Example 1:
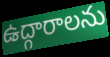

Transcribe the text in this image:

ఉద్గారాలను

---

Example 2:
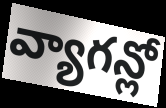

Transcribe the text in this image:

వ్యాగన్లో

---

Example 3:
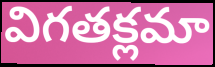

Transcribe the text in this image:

విగతక్లమా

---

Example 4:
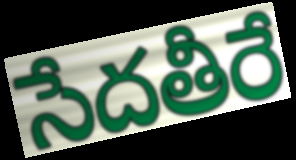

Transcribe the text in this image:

సేదతీరే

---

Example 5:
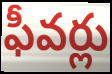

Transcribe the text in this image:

ఫీవర్లు